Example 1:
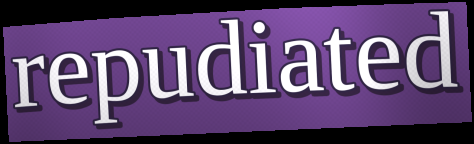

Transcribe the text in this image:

repudiated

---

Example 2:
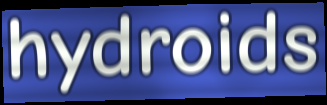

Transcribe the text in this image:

hydroids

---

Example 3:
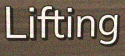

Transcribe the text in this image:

Lifting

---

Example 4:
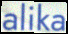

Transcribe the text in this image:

alika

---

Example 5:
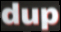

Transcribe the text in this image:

dup